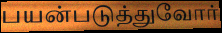
பயன்படுத்துவோர்